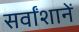
सर्वांशानें